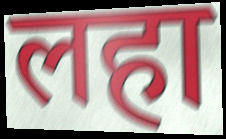
लहा